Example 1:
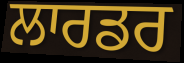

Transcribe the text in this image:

ਲਾਰਡਰ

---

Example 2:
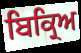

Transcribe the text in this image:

ਬਿਕ੍ਰਿਅ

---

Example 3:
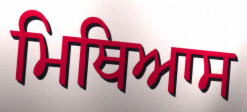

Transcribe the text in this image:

ਮਿਥਿਆਸ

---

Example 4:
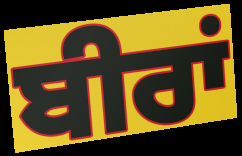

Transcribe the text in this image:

ਬੀਰਾਂ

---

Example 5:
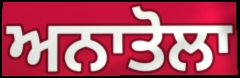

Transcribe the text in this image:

ਅਨਾਤੋਲਾ